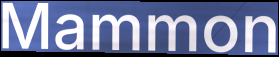
Mammon